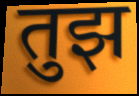
तुझ